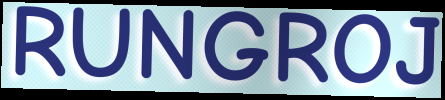
RUNGROJ